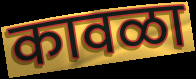
कावळा